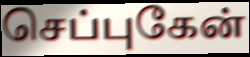
செப்புகேன்